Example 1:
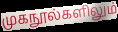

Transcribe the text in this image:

முகநூல்களிலும்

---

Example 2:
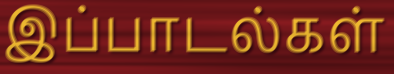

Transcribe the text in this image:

இப்பாடல்கள்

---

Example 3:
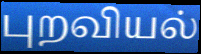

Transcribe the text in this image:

புறவியல்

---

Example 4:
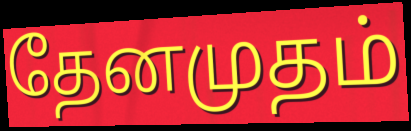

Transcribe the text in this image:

தேனமுதம்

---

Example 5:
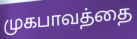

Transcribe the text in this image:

முகபாவத்தை